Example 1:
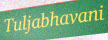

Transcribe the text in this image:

Tuljabhavani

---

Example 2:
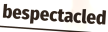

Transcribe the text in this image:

bespectacled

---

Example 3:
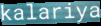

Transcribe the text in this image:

kalariya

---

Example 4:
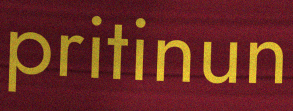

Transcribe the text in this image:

pritinun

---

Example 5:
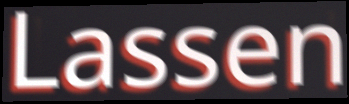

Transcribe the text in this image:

Lassen